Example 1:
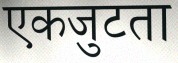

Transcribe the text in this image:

एकजुटता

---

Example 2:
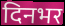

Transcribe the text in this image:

दिनभर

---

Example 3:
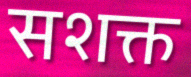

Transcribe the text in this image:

सशक्त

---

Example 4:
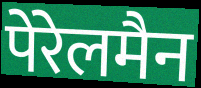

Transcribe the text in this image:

पेरेलमैन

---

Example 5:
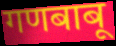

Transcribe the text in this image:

गणबाबू